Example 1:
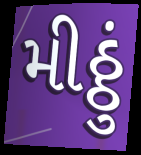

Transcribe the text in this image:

મીઠ્ઠું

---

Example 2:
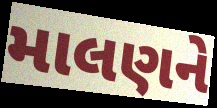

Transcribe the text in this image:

માલણને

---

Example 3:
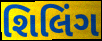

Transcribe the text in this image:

શિલિંગ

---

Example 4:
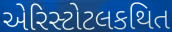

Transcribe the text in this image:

એરિસ્ટોટલકથિત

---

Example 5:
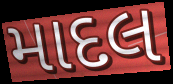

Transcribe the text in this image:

માદલ